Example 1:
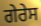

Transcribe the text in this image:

ਗੇਰੇਸ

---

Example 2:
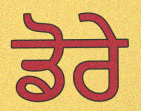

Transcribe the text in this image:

ਡੋਰੇ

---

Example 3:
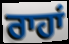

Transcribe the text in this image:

ਰਾਹਾਂ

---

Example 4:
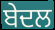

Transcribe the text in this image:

ਬੇਦਲ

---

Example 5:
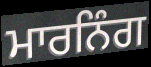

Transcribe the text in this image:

ਮਾਰਨਿੰਗ